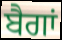
ਬੈਗਾਂ